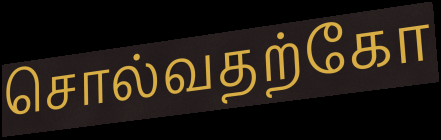
சொல்வதற்கோ